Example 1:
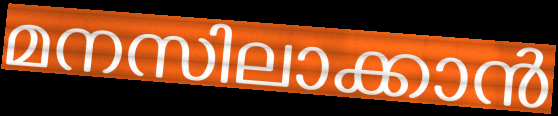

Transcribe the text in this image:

മനസിലാക്കാൻ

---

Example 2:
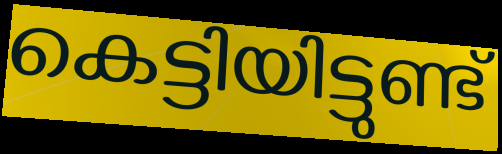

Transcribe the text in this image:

കെട്ടിയിട്ടുണ്ട്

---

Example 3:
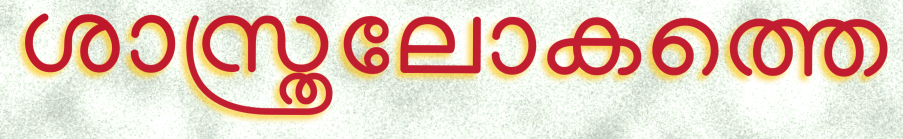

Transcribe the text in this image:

ശാസ്ത്രലോകത്തെ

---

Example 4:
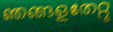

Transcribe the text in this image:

ഞങ്ങളതേറ്റു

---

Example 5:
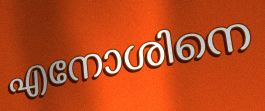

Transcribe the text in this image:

എനോശിനെ